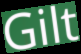
Gilt